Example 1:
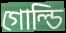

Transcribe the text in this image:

গোল্ডি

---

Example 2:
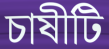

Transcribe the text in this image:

চাষীটি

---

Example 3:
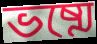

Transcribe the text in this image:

ভষ্মে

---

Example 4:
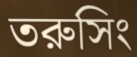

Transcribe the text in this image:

তরুসিং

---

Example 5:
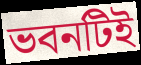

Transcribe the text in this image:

ভবনটিই